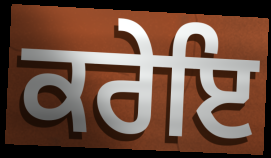
ਕਰੇਇ